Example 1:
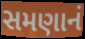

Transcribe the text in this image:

સમણાનં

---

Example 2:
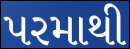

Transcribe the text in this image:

પરમાથી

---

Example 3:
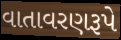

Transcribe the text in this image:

વાતાવરણરૂપે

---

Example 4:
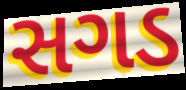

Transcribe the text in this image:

સગડ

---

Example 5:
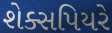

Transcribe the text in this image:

શેક્સપિયરે